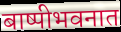
बाष्पीभवनात